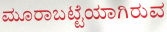
ಮೂರಾಬಟ್ಟೆಯಾಗಿರುವ